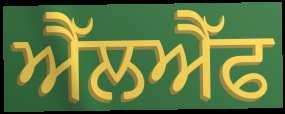
ਐੱਲਐੱਫ